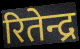
रितेन्द्र